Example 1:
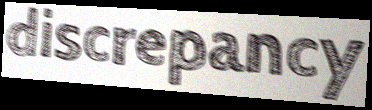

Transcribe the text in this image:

discrepancy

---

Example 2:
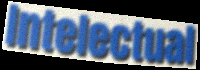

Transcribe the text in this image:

Intelectual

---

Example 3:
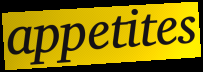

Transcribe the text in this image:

appetites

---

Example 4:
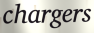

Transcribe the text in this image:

chargers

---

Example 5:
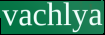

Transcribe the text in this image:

vachlya